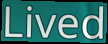
Lived